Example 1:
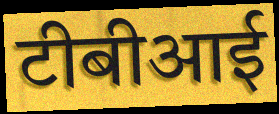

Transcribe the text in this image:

टीबीआई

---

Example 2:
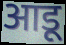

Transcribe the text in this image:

आडू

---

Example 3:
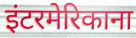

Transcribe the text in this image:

इंटरमेरिकाना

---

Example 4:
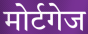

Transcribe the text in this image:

मोर्टगेज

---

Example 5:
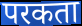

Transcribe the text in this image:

परकता